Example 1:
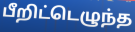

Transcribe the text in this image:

பீறிட்டெழுந்த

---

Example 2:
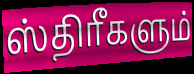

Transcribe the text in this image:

ஸ்திரீகளும்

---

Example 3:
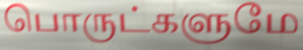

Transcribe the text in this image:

பொருட்களுமே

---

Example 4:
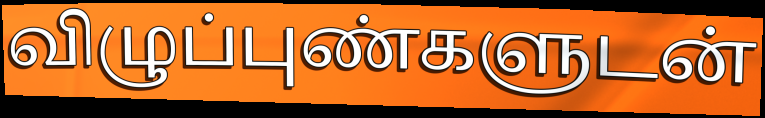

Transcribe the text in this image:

விழுப்புண்களுடன்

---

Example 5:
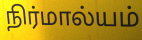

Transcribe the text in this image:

நிர்மால்யம்